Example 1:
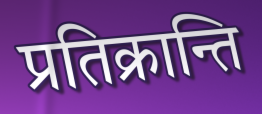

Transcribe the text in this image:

प्रतिक्रान्ति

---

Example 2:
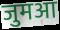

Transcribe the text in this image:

जुमआ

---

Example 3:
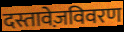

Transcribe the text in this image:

दस्तावेज़विवरण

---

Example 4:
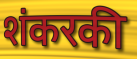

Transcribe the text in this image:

शंकरकी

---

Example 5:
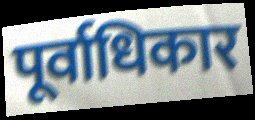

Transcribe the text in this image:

पूर्वाधिकार